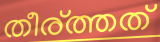
തീര്ത്തത്